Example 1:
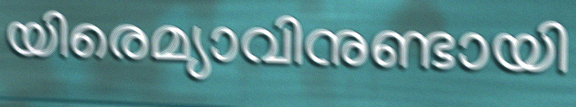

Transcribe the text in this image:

യിരെമ്യാവിനുണ്ടായി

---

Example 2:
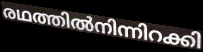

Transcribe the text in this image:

രഥത്തിൽനിന്നിറക്കി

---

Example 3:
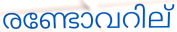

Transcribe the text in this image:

രണ്ടോവറില്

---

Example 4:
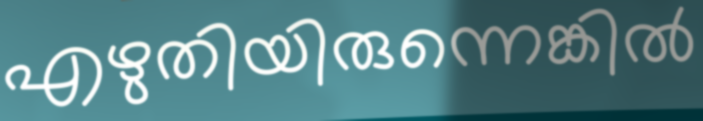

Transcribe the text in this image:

എഴുതിയിരുന്നെങ്കിൽ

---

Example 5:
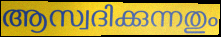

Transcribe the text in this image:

ആസ്വദിക്കുന്നതും